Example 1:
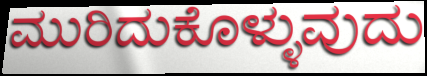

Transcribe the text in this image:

ಮುರಿದುಕೊಳ್ಳುವುದು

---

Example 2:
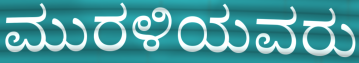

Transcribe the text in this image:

ಮುರಳಿಯವರು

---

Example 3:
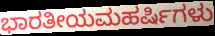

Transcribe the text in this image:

ಭಾರತೀಯಮಹರ್ಷಿಗಳು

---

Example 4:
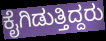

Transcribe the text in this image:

ಕೈಗಿಡುತ್ತಿದ್ದರು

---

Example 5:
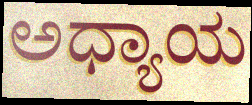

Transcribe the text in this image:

ಅಧ್ಯಾಯ